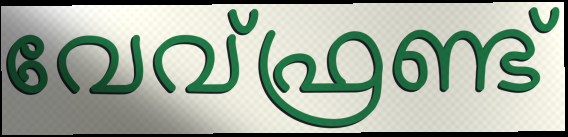
വേവ്ഫ്രണ്ട്